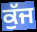
ਕੁੱਜ